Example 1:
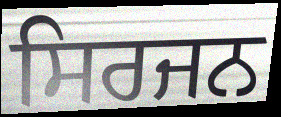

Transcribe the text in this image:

ਸਿਰਜਨ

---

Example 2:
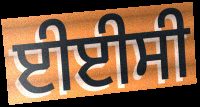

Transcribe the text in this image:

ਈਈਸੀ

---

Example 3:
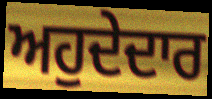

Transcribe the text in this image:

ਅਹੁਦੇਦਾਰ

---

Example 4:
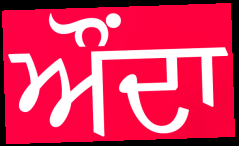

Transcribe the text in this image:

ਔਂਦਾ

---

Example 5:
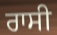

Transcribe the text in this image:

ਰਾਸੀ